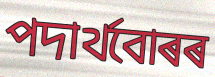
পদাৰ্থবোৰৰ